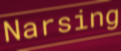
Narsing